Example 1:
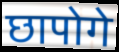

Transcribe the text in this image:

छापोगे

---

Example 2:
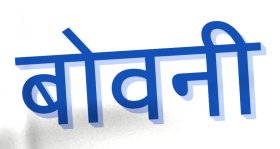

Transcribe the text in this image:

बोवनी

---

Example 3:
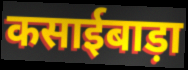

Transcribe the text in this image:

कसाईबाड़ा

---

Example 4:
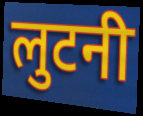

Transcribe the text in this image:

लुटनी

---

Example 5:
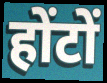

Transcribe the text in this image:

होंटों